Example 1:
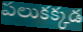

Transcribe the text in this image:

పలుకక్కడ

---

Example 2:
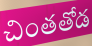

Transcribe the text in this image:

చింతతోడ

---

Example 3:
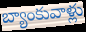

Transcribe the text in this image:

బ్యాంకువాళ్లు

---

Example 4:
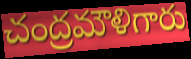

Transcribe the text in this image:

చంద్రమౌళిగారు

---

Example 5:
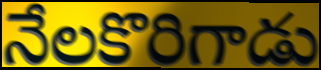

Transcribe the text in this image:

నేలకొరిగాడు